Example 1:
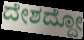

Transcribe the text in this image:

ದೇಶದ್ದೋ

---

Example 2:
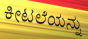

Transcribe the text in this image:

ಕೀಟಲೆಯನ್ನು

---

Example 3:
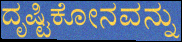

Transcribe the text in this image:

ದೃಷ್ಟಿಕೋನವನ್ನು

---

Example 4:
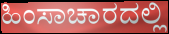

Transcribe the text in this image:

ಹಿಂಸಾಚಾರದಲ್ಲಿ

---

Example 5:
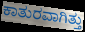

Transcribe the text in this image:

ಕಾತುರವಾಗಿತ್ತು